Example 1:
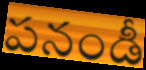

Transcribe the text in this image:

పనండీ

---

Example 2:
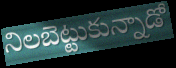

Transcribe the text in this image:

నిలబెట్టుకున్నాడో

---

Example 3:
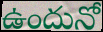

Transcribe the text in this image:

ఉందునో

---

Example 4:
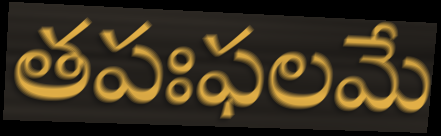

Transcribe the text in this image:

తపఃఫలమే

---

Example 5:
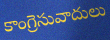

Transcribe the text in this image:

కాంగ్రెసువాదులు